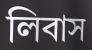
লিবাস